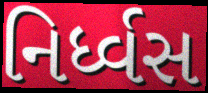
નિર્ધ્વસ